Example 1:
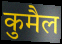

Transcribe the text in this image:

कुमैल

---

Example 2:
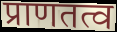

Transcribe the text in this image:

प्राणतत्व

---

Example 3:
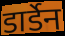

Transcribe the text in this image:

डार्डेन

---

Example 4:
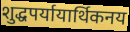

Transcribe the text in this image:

शुद्धपर्यायार्थिकनय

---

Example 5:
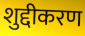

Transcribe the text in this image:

शुद्दीकरण